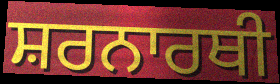
ਸ਼ਰਨਾਰਥੀ